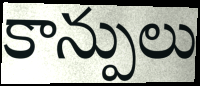
కాన్పులు